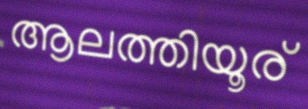
ആലത്തിയൂര്